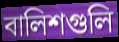
বালিশগুলি